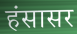
हंसासर